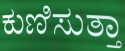
ಕುಣಿಸುತ್ತಾ